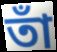
তাঁ